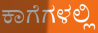
ಕಾಗೆಗಳಲ್ಲಿ